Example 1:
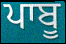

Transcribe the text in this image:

ਪਾਬੂ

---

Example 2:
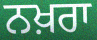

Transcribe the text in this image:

ਨਖ਼ਰਾ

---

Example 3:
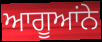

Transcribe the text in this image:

ਆਗੂਆਂਨੇ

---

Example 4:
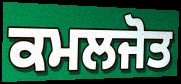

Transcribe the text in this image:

ਕਮਲਜੋਤ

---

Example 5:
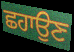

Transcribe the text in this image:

ਛਹਾਉਣ